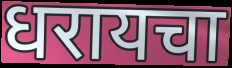
धरायचा